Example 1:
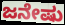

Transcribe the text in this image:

ಜನೇಷು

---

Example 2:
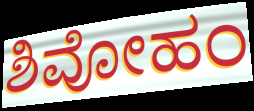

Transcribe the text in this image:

ಶಿವೋಹಂ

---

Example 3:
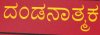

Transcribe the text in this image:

ದಂಡನಾತ್ಮಕ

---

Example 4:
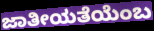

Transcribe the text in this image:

ಜಾತೀಯತೆಯೆಂಬ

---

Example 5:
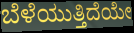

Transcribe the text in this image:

ಬೆಳೆಯುತ್ತಿದೆಯೇ